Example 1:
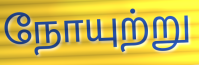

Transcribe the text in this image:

நோயுற்று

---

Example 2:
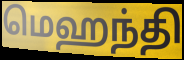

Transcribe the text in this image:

மெஹந்தி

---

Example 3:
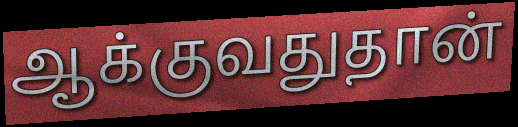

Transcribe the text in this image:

ஆக்குவதுதான்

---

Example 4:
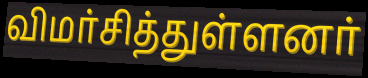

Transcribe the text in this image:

விமர்சித்துள்ளனர்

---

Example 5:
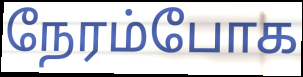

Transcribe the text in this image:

நேரம்போக